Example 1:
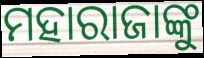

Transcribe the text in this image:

ମହାରାଜାଙ୍କୁ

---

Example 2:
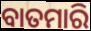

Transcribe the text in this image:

ବାତମାରି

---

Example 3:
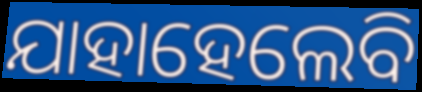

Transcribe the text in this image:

ଯାହାହେଲେବି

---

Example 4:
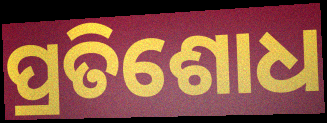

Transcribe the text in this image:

ପ୍ରତିଶୋଧ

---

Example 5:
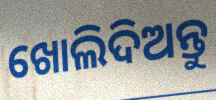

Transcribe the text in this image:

ଖୋଲିଦିଅନ୍ତୁ